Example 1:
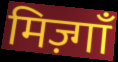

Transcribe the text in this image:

मिज़्गाँ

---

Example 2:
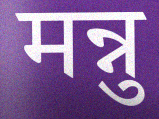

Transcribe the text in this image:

मन्नु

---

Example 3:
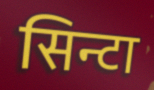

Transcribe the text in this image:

सिन्टा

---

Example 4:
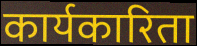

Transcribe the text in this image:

कार्यकारिता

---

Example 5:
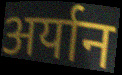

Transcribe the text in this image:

अर्यान